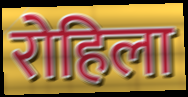
रोहिला